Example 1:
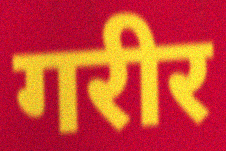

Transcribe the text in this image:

गरीर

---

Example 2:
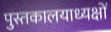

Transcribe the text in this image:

पुस्तकालयाध्यक्षों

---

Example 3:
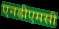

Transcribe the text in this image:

एनडीएमसी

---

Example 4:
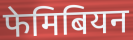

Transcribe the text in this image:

फेमिबियन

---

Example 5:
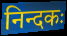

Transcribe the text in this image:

निन्दकः